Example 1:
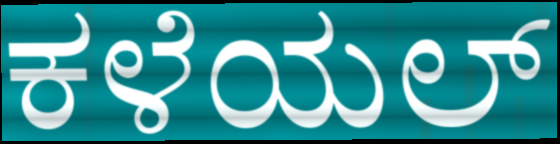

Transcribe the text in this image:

ಕಳೆಯಲ್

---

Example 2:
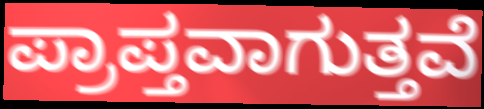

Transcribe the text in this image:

ಪ್ರಾಪ್ತವಾಗುತ್ತವೆ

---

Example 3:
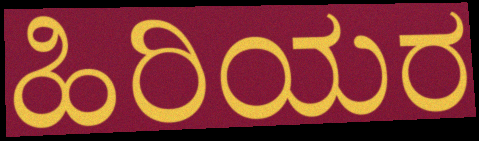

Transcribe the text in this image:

ಹಿರಿಯರ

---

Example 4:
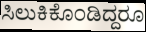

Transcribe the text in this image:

ಸಿಲುಕಿಕೊಂಡಿದ್ದರೂ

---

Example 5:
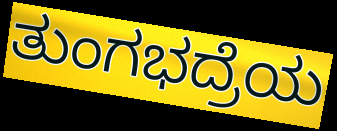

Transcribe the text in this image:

ತುಂಗಭದ್ರೆಯ